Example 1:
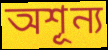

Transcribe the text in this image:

অশূন্য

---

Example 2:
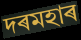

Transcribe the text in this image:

দৰমহাৰ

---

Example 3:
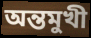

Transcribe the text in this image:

অন্তমুখী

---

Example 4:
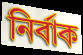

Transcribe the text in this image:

নিৰ্বাক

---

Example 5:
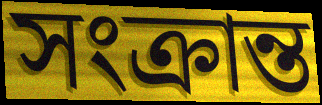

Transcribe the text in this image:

সংক্ৰান্ত